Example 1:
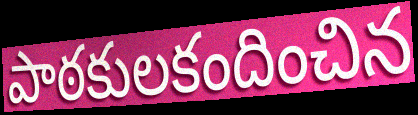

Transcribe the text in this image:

పాఠకులకందించిన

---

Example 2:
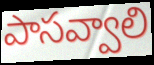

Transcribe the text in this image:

పాసవ్వాలి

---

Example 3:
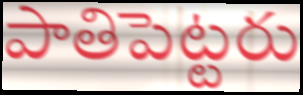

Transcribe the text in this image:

పాతిపెట్టరు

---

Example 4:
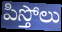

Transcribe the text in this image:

పిస్తోలు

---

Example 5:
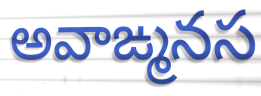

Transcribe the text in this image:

అవాఙ్మనస